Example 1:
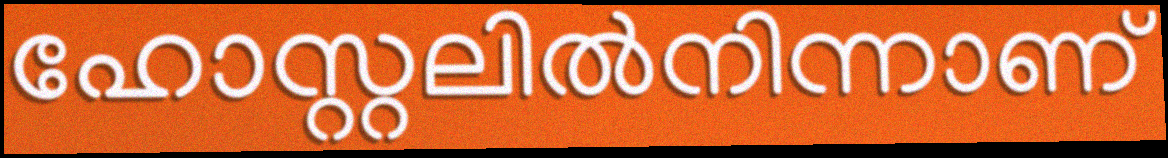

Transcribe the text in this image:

ഹോസ്റ്റലിൽനിന്നാണ്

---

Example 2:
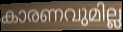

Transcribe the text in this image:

കാരണവുമില്ല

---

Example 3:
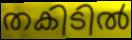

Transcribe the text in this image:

തകിടിൽ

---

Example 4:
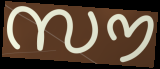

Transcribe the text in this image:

സൗ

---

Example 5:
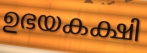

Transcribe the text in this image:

ഉഭയകക്ഷി